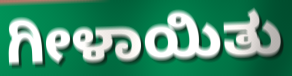
ಗೀಳಾಯಿತು